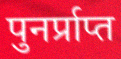
पुनर्प्राप्त